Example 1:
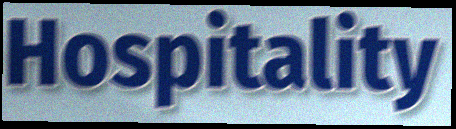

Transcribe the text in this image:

Hospitality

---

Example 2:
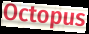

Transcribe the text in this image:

Octopus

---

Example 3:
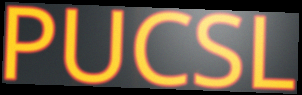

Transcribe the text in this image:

PUCSL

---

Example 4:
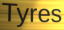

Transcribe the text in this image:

Tyres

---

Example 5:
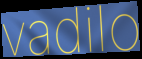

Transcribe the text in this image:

vadilo